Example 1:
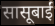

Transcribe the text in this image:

सासूबाईं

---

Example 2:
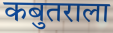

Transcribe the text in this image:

कबुतराला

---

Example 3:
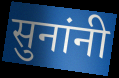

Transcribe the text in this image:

सुनांनी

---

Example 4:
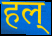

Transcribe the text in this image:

हल्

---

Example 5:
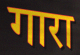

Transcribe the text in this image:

गारा